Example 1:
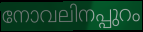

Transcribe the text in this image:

നോവലിനപ്പുറം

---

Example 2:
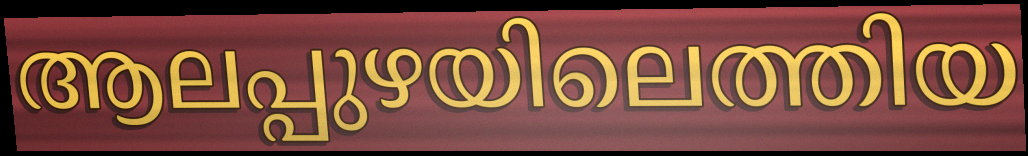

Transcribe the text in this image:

ആലപ്പുഴയിലെത്തിയ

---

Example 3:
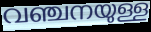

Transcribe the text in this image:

വഞ്ചനയുള്ള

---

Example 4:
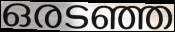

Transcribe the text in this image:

ഒരടഞ്ഞ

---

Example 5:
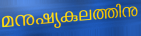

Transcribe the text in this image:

മനുഷ്യകുലത്തിനു